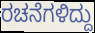
ರಚನೆಗಳಿದ್ದು